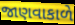
જાણવાકાળે